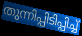
തുന്നിപ്പിടിപ്പിച്ച്